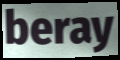
beray